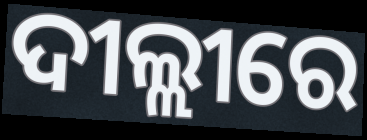
ଦୀଲ୍ଲୀରେ